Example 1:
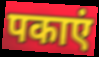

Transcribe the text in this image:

पकाएं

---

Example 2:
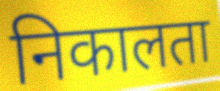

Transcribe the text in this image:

निकालता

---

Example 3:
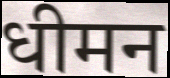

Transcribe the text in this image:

धीमन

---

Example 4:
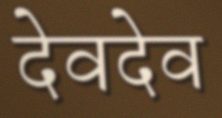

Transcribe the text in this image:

देवदेव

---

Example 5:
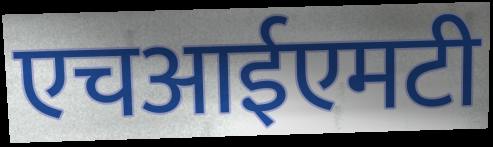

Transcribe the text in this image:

एचआईएमटी